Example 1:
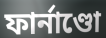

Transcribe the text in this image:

ফাৰ্নাণ্ডো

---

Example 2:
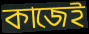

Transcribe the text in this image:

কাজেই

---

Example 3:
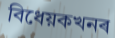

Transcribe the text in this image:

বিধেয়কখনৰ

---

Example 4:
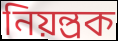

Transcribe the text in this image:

নিয়ন্ত্ৰক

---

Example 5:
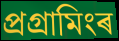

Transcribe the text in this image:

প্ৰগ্ৰামিংৰ